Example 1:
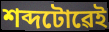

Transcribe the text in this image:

শব্দটোৱেই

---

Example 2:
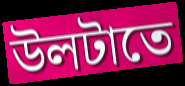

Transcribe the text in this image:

উলটাতে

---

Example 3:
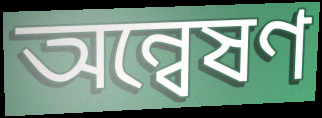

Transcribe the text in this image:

অন্বেষণ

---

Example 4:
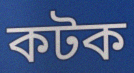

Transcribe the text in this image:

কটক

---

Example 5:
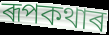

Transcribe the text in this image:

ৰূপকথাৰ